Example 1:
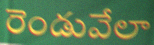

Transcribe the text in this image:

రెండువేలా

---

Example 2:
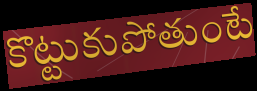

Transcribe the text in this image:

కొట్టుకుపోతుంటే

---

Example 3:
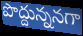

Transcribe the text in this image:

పొద్దున్ననగా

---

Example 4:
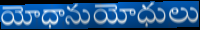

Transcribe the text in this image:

యోధానుయోధులు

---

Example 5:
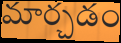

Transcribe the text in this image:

మార్చడం